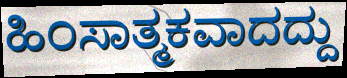
ಹಿಂಸಾತ್ಮಕವಾದದ್ದು